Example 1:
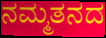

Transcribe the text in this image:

ನಮ್ಮತನದ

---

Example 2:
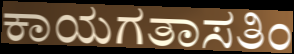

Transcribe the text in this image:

ಕಾಯಗತಾಸತಿಂ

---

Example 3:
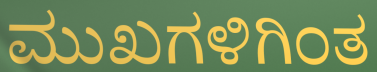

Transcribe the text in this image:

ಮುಖಗಳಿಗಿಂತ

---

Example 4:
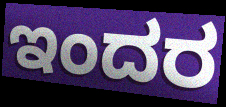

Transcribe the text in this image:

ಇಂದರ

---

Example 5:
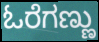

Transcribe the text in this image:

ಓರೆಗಣ್ಣು